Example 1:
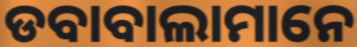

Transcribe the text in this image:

ଡବାବାଲାମାନେ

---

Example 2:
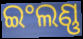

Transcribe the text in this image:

ଇଂଲଣ୍ଣ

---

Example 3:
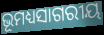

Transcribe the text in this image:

ଭୂମଧ୍ୟସାଗରୀୟ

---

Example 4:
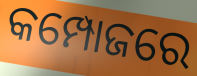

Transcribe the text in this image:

କମ୍ପୋଜରେ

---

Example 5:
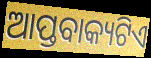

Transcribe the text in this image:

ଆପ୍ତବାକ୍ୟଟିଏ